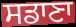
ਸਡਾਣਾ